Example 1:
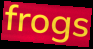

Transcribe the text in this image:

frogs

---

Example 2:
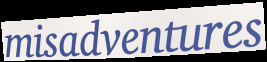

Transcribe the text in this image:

misadventures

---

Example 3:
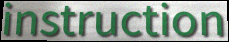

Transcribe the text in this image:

instruction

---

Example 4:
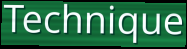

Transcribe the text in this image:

Technique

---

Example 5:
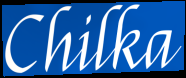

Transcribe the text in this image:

Chilka